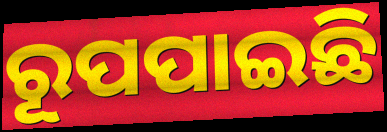
ରୂପପାଇଛି